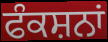
ਫੰਕਸ਼ਨਾਂ